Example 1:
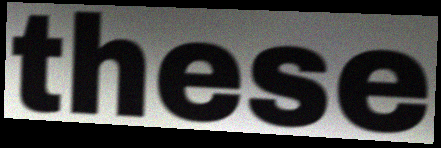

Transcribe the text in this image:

these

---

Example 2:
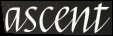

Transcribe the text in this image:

ascent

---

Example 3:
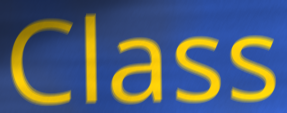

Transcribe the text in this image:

Class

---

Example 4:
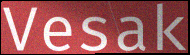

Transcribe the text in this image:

Vesak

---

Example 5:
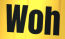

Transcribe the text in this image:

Woh